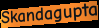
Skandagupta